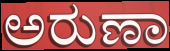
ಅರುಣಾ